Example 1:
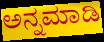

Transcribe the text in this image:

ಅನ್ನಮಾಡಿ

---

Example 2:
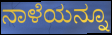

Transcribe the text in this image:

ನಾಳೆಯನ್ನೂ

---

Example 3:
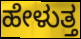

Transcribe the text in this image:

ಹೇಳುತ್ತ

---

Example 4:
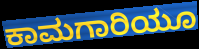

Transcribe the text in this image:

ಕಾಮಗಾರಿಯೂ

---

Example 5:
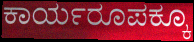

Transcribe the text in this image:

ಕಾರ್ಯರೂಪಕ್ಕೂ